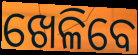
ଖେଳିବେ